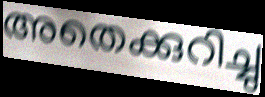
അതെക്കുറിച്ചു